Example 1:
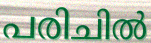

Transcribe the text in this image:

പരിചിൽ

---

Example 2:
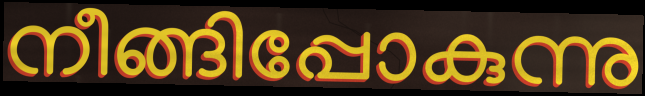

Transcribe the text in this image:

നീങ്ങിപ്പോകുന്നു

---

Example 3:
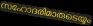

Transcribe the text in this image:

സഹോദരിമാരുടെയും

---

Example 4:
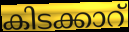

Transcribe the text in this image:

കിടക്കാറ്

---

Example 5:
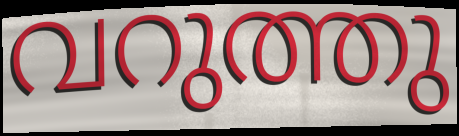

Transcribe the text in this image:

വറുത്തു